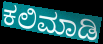
ಕಲಿಮಾಡಿ